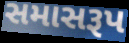
સમાસરૂપ